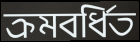
ক্ৰমবৰ্ধিত